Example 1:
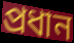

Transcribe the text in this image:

প্রধান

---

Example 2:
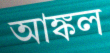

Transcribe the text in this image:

আঙ্কল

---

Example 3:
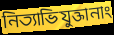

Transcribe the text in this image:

নিত্যাভিযুক্তানাং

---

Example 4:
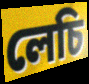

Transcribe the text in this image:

লেচি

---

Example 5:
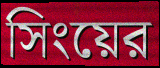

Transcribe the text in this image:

সিংয়ের